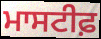
ਮਾਸਟੀਫ਼